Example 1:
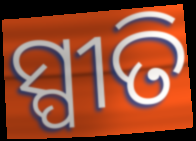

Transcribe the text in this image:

ସ୍ପୀତି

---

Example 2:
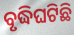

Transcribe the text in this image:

ବୃଦ୍ଧିଘଟିଛି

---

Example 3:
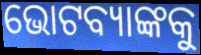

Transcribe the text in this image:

ଭୋଟବ୍ୟାଙ୍କକୁ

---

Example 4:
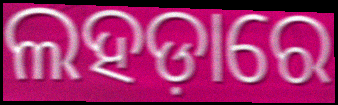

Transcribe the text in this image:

ଲହଡ଼ାରେ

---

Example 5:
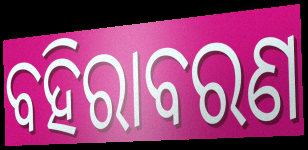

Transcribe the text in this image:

ବହିରାବରଣ